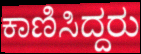
ಕಾಣಿಸಿದ್ದರು